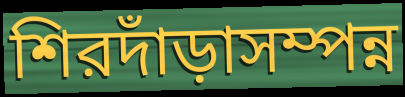
শিরদাঁড়াসম্পন্ন